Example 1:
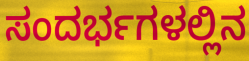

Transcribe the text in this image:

ಸಂದರ್ಭಗಳಲ್ಲಿನ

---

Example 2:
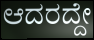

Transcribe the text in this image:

ಆದರದ್ದೇ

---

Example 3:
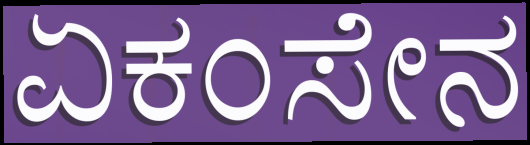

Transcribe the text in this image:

ಏಕಂಸೇನ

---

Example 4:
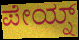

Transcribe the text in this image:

ಪೇಯ್ನ್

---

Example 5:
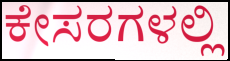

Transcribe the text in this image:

ಕೇಸರಗಳಲ್ಲಿ